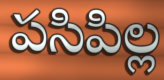
పసిపిల్ల